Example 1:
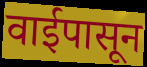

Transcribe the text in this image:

वाईपासून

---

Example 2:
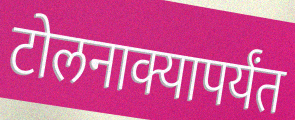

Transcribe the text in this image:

टोलनाक्यापर्यंत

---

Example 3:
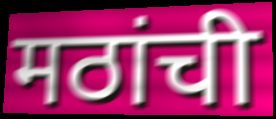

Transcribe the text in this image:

मठांची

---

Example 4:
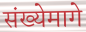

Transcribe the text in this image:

संख्येमागे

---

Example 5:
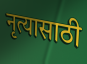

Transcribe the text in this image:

नृत्यासाठी